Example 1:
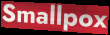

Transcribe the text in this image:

Smallpox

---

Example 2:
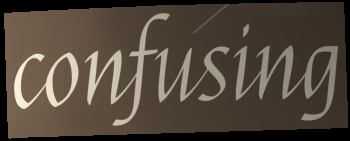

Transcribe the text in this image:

confusing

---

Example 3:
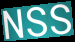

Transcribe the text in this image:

NSS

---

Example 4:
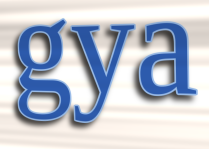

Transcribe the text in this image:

gya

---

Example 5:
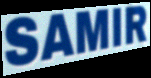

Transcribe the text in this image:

SAMIR